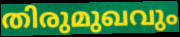
തിരുമുഖവും